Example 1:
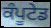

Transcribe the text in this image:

ਕੰਪੂਟੇਡ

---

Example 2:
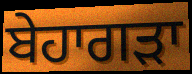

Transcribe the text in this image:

ਬੇਹਾਗੜਾ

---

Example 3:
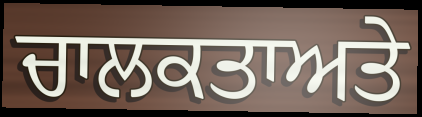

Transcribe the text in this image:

ਚਾਲਕਤਾਅਤੇ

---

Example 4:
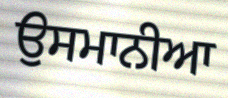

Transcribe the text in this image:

ਉਸਮਾਨੀਆ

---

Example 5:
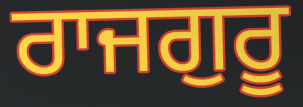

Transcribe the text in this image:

ਰਾਜਗੁਰੂ